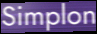
Simplon